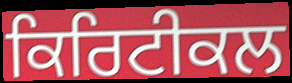
ਕਿਰਿਟੀਕਲ